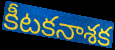
కీటకనాశక